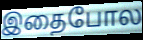
இதைபோல